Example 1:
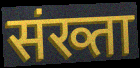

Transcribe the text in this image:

संख्ता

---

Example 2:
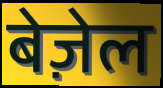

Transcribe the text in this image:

बेज़ेल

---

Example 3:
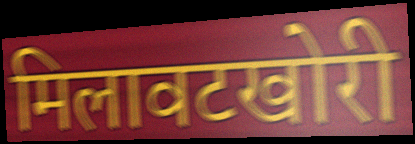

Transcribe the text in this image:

मिलावटखोरी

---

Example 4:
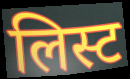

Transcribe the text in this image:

लिस्ट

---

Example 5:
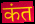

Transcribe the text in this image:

कंत